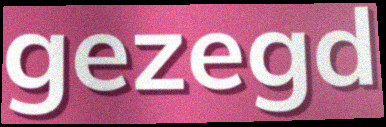
gezegd